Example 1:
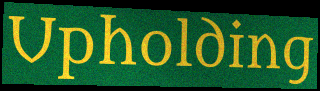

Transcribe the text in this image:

Upholding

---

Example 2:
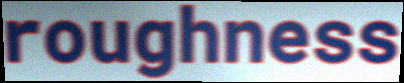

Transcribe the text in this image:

roughness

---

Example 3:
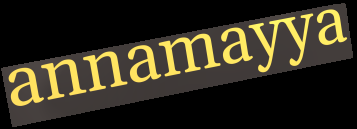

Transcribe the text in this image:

annamayya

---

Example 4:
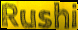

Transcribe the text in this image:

Rushi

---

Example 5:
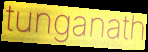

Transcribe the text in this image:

tunganath